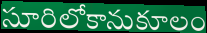
సూరిలోకానుకూలం